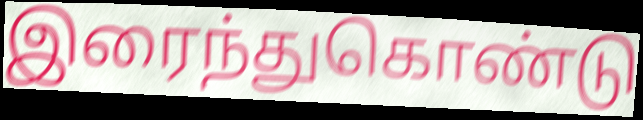
இரைந்துகொண்டு